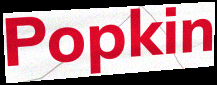
Popkin